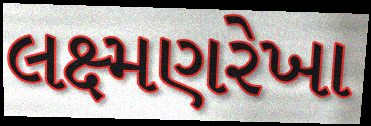
લક્ષ્મણરેખા